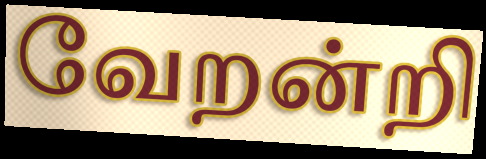
வேறன்றி